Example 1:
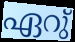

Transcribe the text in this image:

ഏറു്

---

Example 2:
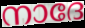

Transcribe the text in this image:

നാദേ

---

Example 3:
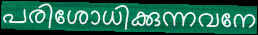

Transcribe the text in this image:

പരിശോധിക്കുന്നവനേ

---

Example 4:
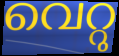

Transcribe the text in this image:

വെറ്റു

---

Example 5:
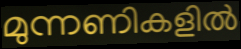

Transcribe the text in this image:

മുന്നണികളിൽ